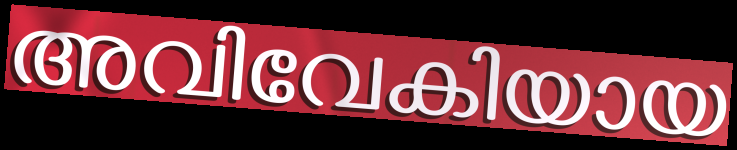
അവിവേകിയായ